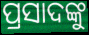
ପ୍ରସାଦଙ୍କୁ